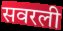
सवरली